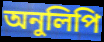
অনুলিপি